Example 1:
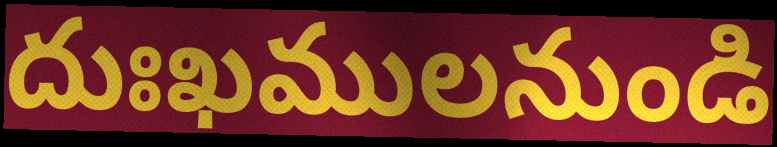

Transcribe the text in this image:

దుఃఖములనుండి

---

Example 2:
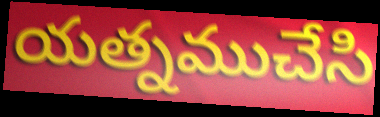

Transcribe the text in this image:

యత్నముచేసి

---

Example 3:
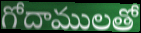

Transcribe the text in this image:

గోదాములతో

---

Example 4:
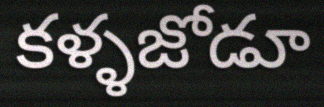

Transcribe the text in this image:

కళ్ళజోడూ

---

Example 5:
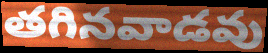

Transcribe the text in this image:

తగినవాడవు